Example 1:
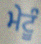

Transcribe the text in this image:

ਮੇਟੂੰ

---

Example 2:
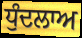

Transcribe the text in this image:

ਧੁੰਦਲਾਅ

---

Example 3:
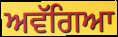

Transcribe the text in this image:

ਅਵੱਗਿਆ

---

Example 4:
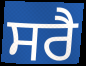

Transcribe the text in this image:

ਸਰੈ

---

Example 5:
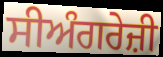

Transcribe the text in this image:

ਸੀਅੰਗਰੇਜ਼ੀ